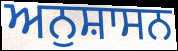
ਅਨੁਸ਼ਾਸਨ